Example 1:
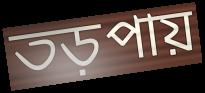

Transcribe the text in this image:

তড়পায়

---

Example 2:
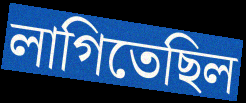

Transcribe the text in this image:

লাগিতেছিল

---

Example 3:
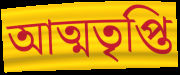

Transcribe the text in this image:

আত্মতৃপ্তি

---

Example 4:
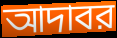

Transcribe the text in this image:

আদাবর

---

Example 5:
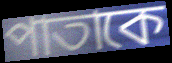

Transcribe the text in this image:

পাতাকে